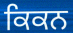
ਕਿਕਨ